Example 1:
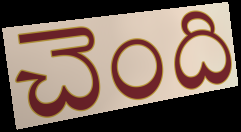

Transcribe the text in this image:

చెంది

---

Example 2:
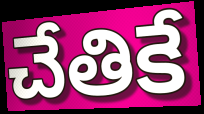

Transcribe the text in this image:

చేతికే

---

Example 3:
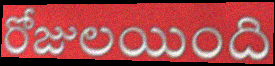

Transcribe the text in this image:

రోజులయింది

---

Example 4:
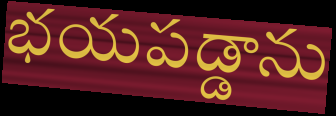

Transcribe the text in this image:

భయపడ్డాను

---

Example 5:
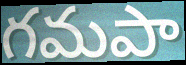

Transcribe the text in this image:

గమపా